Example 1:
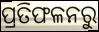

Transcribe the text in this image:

ପ୍ରତିଫଳନରୁ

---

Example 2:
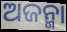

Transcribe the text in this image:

ଅଜନ୍ମା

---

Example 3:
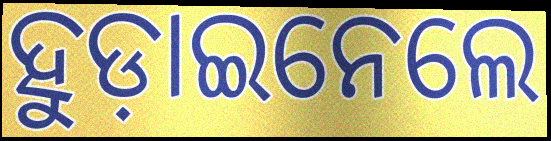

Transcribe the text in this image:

ହୁଡ଼ାଇନେଲେ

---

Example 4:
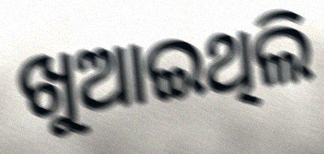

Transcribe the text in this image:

ଖୁଆଇଥିଲି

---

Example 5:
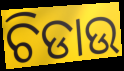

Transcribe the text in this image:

ଚିଡାଉ